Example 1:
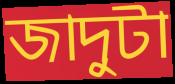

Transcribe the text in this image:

জাদুটা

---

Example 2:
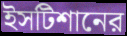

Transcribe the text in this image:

ইসটিশানের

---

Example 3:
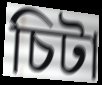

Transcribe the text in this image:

চিটা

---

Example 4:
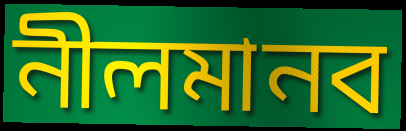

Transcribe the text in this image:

নীলমানব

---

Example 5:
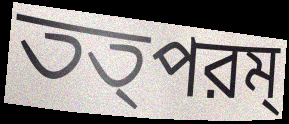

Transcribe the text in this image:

তত্পরম্